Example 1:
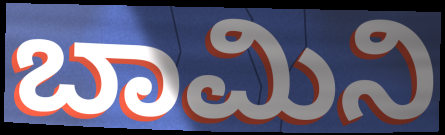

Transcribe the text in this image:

ಬಾಮಿನಿ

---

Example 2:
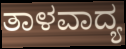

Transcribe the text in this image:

ತಾಳವಾದ್ಯ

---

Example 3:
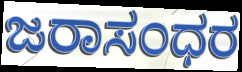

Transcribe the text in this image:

ಜರಾಸಂಧರ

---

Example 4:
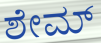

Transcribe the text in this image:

ಶೇಮ್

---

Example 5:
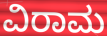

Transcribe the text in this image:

ವಿರಾಮ